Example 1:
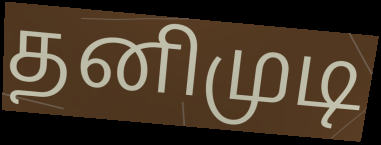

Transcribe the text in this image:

தனிமுடி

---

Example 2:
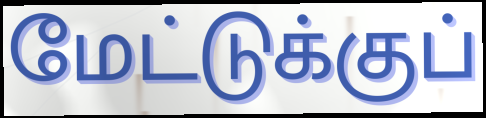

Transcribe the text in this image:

மேட்டுக்குப்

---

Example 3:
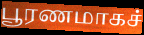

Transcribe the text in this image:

பூரணமாகச்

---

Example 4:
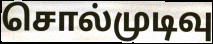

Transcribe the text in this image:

சொல்முடிவு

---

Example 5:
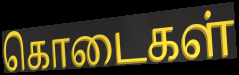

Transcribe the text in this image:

கொடைகள்